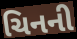
ચિનની